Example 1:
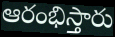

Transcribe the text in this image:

ఆరంభిస్తారు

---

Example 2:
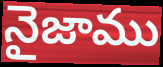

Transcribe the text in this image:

నైజాము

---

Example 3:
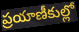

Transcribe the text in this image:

ప్రయాణీకుల్లో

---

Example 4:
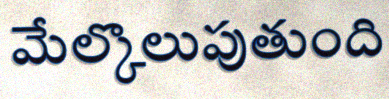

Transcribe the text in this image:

మేల్కొలుపుతుంది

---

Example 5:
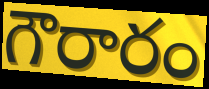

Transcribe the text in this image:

గౌరారం